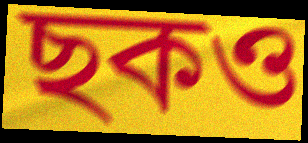
ছকও